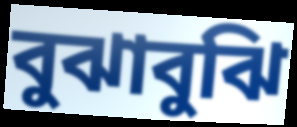
বুঝাবুঝি